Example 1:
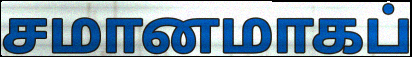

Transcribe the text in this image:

சமானமாகப்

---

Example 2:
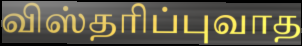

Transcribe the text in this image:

விஸ்தரிப்புவாத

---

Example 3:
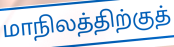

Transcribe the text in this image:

மாநிலத்திற்குத்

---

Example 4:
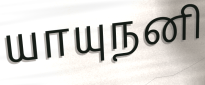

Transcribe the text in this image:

யாயுநனி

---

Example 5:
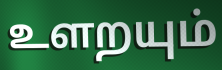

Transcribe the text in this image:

உளறயும்